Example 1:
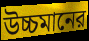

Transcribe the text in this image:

উচ্চমানের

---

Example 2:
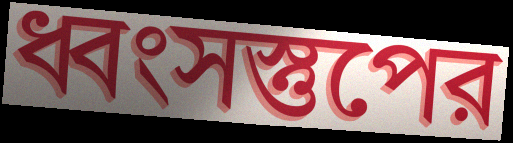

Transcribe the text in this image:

ধ্বংসস্তুপের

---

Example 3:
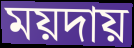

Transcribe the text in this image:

ময়দায়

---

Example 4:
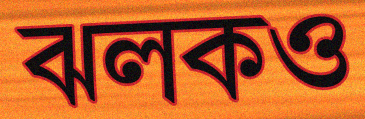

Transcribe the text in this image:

ঝলকও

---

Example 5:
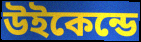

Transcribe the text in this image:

উইকেন্ডে